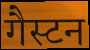
गैस्टन